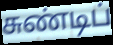
சுண்டிப்